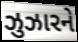
ઝુઝારને